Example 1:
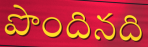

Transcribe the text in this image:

పొందినది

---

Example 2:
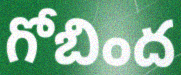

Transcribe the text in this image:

గోబింద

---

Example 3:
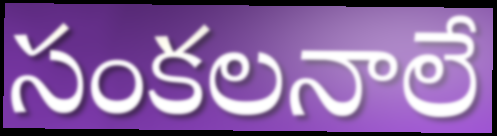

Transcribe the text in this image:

సంకలనాలే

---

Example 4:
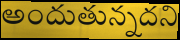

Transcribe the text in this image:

అందుతున్నదని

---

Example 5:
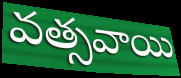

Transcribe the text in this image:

వత్సవాయి